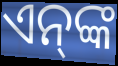
ଏନ୍‌ଙ୍କ